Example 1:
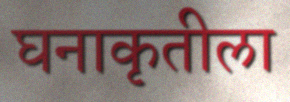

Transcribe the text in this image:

घनाकृतीला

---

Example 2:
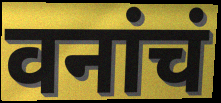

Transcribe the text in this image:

वनांचं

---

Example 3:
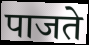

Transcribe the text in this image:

पाजते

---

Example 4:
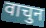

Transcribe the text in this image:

वाचुन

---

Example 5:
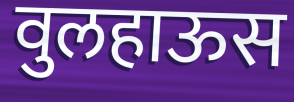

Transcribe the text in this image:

वुलहाऊस